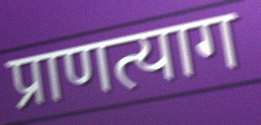
प्राणत्याग